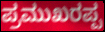
ಪ್ರಮುಖರಪ್ಪ